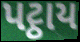
પટ્ઠાય